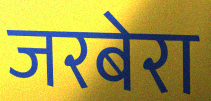
जरबेरा